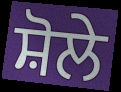
ਸ਼ੋਲੇ